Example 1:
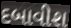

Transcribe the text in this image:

દબાવીશ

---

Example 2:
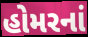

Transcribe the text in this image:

હોમરનાં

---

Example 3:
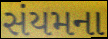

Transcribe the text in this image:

સંયમના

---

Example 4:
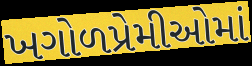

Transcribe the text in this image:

ખગોળપ્રેમીઓમાં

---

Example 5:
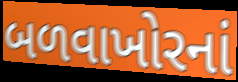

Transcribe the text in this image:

બળવાખોરનાં